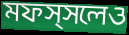
মফস্‌সলেও